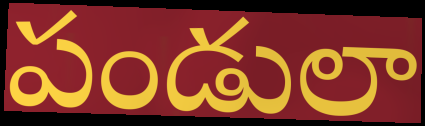
పండులా